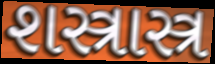
શસ્ત્રાસ્ત્ર